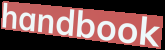
handbook